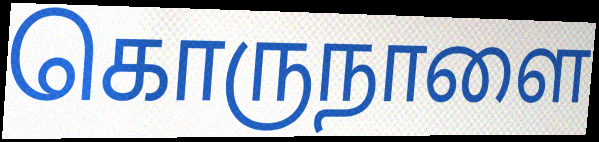
கொருநாளை